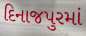
દિનાજપુરમાં